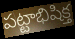
పట్టాభిషిక్త